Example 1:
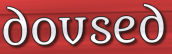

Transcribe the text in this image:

doused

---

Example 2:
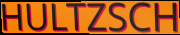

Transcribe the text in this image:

HULTZSCH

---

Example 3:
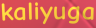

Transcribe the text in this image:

kaliyuga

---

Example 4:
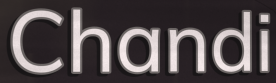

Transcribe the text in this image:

Chandi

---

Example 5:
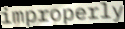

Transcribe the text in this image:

improperly